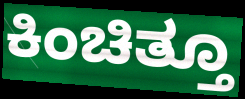
ಕಿಂಚಿತ್ತೂ